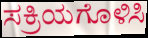
ಸಕ್ರಿಯಗೊಳಿಸಿ